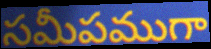
సమీపముగా